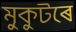
মুকুটৰে